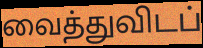
வைத்துவிடப்